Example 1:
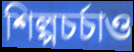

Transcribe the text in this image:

শিল্পচর্চাও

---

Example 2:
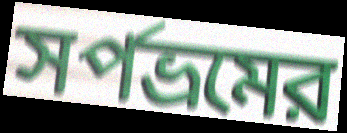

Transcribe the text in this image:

সর্পভ্রমের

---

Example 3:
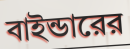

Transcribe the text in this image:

বাইন্ডারের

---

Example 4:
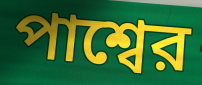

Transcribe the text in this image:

পাশ্বের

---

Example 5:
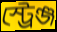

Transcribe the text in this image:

স্ট্রেঞ্জ